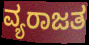
ವ್ಯರಾಜತ